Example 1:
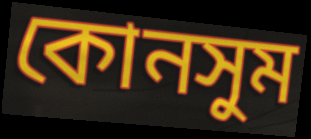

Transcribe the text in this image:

কোনসুম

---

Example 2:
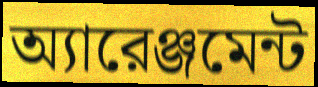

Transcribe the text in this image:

অ্যারেঞ্জমেন্ট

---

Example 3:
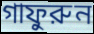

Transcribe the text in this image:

গাফুরুন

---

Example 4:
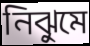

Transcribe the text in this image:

নিঝুমে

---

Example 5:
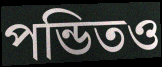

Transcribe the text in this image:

পন্ডিতও